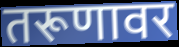
तरूणावर